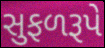
સુફળરૂપે